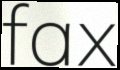
fax